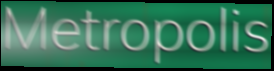
Metropolis